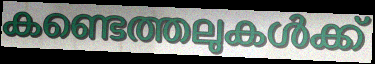
കണ്ടെത്തലുകൾക്ക്